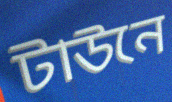
টাউনে